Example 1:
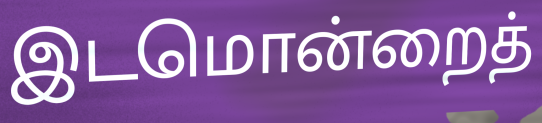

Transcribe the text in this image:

இடமொன்றைத்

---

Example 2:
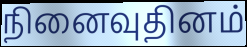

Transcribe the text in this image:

நினைவுதினம்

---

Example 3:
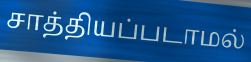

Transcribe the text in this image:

சாத்தியப்படாமல்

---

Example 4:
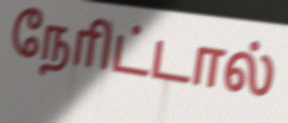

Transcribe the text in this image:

நேரிட்டால்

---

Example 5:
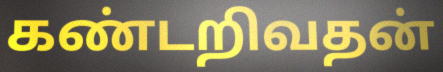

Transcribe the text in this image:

கண்டறிவதன்